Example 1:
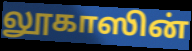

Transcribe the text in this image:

லூகாஸின்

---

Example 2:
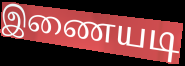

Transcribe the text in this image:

இணையடி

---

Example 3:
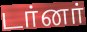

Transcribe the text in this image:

டர்னர்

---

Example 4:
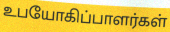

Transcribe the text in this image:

உபயோகிப்பாளர்கள்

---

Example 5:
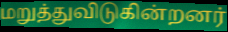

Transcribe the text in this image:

மறுத்துவிடுகின்றனர்